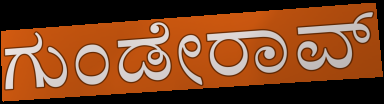
ಗುಂಡೇರಾವ್